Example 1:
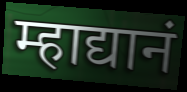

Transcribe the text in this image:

म्हाद्यानं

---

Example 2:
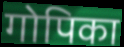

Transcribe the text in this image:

गोपिका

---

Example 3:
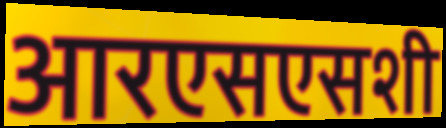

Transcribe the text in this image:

आरएसएसशी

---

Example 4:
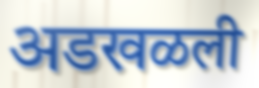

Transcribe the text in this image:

अडखळली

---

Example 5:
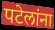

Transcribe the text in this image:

पटेलांना